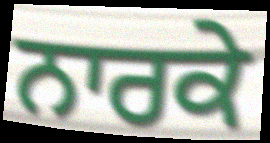
ਨਾਰਕੇ